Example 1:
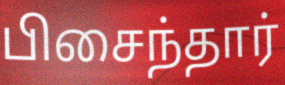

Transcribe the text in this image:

பிசைந்தார்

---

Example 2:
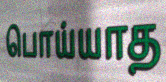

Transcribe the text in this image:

பொய்யாத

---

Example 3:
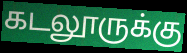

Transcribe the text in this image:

கடலூருக்கு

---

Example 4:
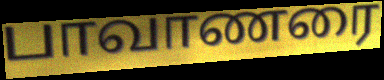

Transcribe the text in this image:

பாவாணரை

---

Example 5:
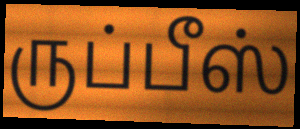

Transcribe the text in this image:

ருப்பீஸ்